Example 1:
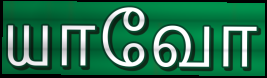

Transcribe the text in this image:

யாவோ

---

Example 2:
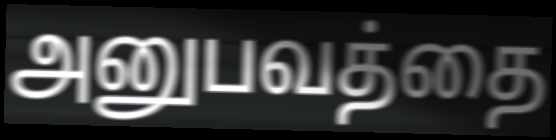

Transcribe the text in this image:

அனுபவத்தை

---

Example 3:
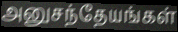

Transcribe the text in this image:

அனுசந்தேயங்கள்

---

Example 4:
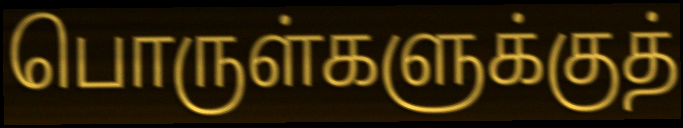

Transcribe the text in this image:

பொருள்களுக்குத்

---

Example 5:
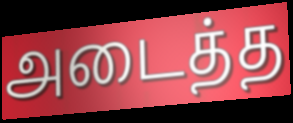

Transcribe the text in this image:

அடைத்த